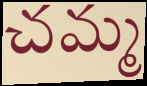
చమ్మ